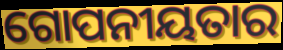
ଗୋପନୀୟତାର